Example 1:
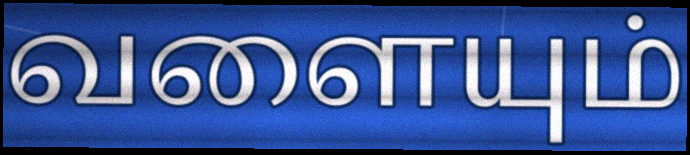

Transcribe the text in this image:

வளையும்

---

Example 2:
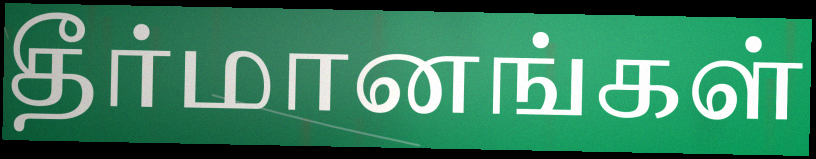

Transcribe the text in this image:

தீர்மானங்கள்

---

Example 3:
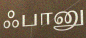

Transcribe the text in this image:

ஃபானு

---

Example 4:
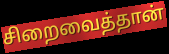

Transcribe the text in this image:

சிறைவைத்தான்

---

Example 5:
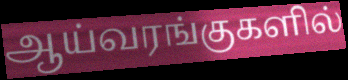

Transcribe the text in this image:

ஆய்வரங்குகளில்